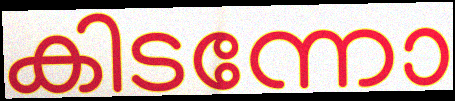
കിടന്നോ